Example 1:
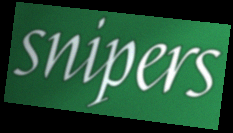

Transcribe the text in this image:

snipers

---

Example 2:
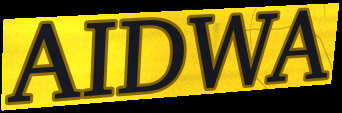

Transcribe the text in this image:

AIDWA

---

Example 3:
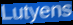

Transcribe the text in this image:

Lutyens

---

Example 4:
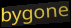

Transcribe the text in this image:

bygone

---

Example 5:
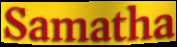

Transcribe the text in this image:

Samatha